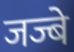
जज्बे